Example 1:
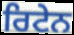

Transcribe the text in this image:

ਰਿਟੇਨ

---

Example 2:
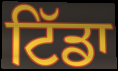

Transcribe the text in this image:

ਟਿੱਡਾ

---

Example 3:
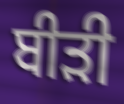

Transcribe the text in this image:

ਬੀਡ਼ੀ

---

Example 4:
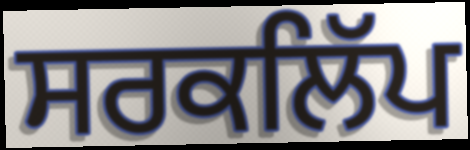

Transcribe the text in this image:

ਸਰਕਲਿੱਪ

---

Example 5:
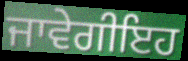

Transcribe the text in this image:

ਜਾਵੇਗੀਇਹ